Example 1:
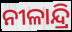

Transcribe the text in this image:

ନୀଳାନ୍ଦ୍ରି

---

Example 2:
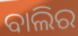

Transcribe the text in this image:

ବାଲିର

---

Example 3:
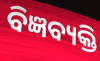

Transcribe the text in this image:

ବିଜ୍ଞବ୍ୟକ୍ତି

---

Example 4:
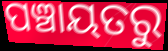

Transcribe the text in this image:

ପଞ୍ଚାୟତରୁ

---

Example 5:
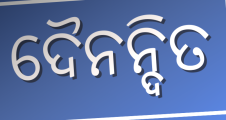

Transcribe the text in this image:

ଦୈନନ୍ଦିତ